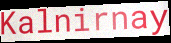
Kalnirnay